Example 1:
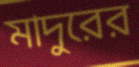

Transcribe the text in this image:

মাদুরের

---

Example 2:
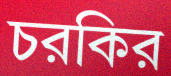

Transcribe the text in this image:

চরকির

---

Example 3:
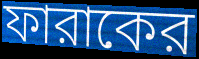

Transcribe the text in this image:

ফারাকের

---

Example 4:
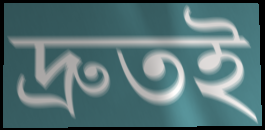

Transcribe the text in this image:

দ্রুতই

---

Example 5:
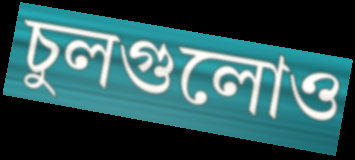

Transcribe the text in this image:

চুলগুলোও